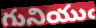
గునియుఁ